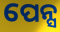
ପେନ୍ସ